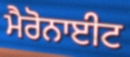
ਮੈਰੋਨਾਈਟ